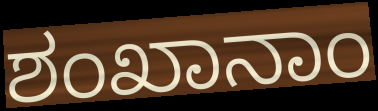
ಶಂಖಾನಾಂ